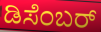
ಡಿಸೆಂಬರ್